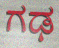
ಗಢ